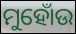
ମୁହୋଁଉ